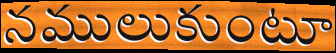
నములుకుంటూ